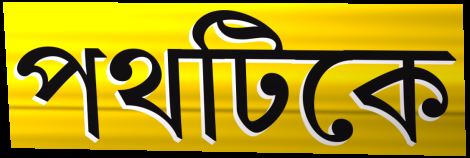
পথটিকে